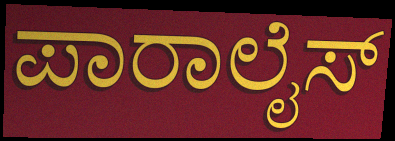
ಪಾರಾಲೈಸ್